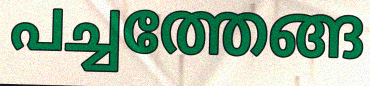
പച്ചത്തേങ്ങ